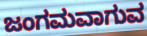
ಜಂಗಮವಾಗುವ